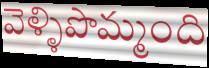
వెళ్ళిపొమ్మంది